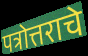
पत्रोत्तराचे